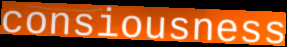
consiousness